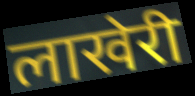
लाखेरी